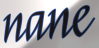
nane